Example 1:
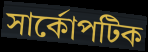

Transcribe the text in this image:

সার্কোপটিক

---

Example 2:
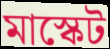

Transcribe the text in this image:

মাস্কেট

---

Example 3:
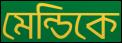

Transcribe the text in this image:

মেন্ডিকে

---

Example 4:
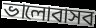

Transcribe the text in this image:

ভালোবাসব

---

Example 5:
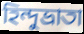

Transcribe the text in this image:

হিন্দুভ্রাতা